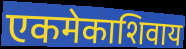
एकमेकाशिवाय